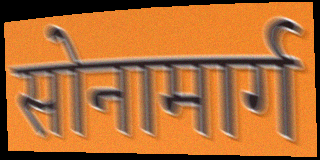
सोनामार्ग